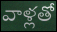
వాళ్లతో